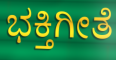
ಭಕ್ತಿಗೀತೆ